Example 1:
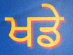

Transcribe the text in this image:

ਖਡੇ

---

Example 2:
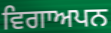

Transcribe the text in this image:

ਵਿਗਾਅਪਨ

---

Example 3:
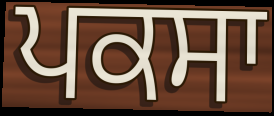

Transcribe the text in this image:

ਪਕਸਾ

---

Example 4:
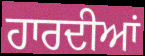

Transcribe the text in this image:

ਹਾਰਦੀਆਂ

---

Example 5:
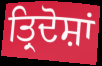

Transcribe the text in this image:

ਤ੍ਰਿਦੋਸ਼ਾਂ